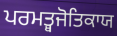
ਪਰਮਤ੍ਥਜੋਤਿਕਾਯ